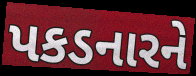
પકડનારને